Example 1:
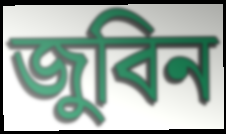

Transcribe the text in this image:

জুবিন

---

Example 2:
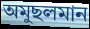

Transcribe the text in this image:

অমুছলমান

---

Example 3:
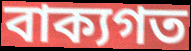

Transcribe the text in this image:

বাক্যগত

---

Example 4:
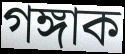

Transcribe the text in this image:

গঙ্গাক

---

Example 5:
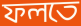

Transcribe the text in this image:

ফলতে